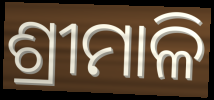
ଶ୍ରୀମାଳି